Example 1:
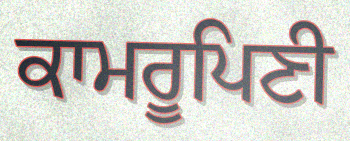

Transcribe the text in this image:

ਕਾਮਰੂਪਿਣੀ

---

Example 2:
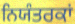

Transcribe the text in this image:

ਨਿਯੰਤਰਕਾਂ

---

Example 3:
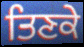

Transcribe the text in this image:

ਤਿਣਕੇ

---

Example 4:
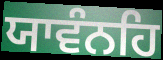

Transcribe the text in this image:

ਯਾਵੰਨਹਿ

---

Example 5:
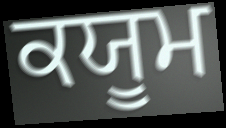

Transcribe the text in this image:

ਕਯੂਮ